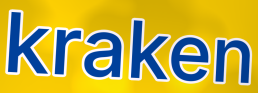
kraken